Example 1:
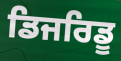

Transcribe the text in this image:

ਡਿਜਰਿਡੂ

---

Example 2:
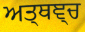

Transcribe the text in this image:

ਅਤ੍ਥਞ੍ਚ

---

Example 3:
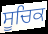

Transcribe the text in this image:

ਸੂਚਿਕ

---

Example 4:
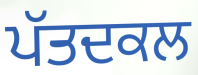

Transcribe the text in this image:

ਪੱਤਦਕਲ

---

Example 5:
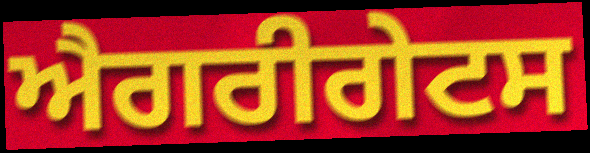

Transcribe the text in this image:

ਐਗਰੀਗੇਟਸ